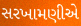
સરખામણીએ